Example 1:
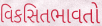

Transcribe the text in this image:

વિકસિતભાવતો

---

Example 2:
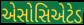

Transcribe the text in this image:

એસોસિએટેડ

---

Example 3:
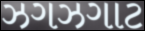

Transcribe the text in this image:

ઝગઝગાટ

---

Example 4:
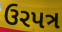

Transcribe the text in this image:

ઉરપત્ર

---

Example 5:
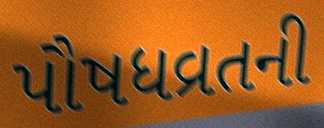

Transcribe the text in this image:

પૌષધવ્રતની